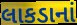
લાકડાનાં